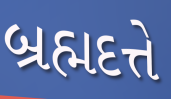
બ્રહ્મદત્તે